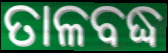
ତାଳବଦ୍ଧ